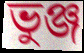
ভুঞ্জ